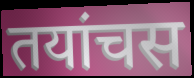
तयांचस